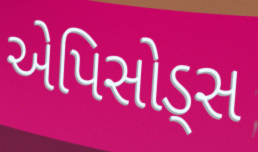
એપિસોડ્સ